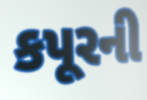
કપૂરની